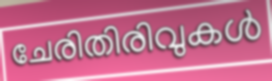
ചേരിതിരിവുകൾ